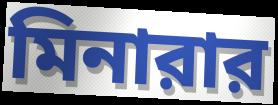
মিনারার